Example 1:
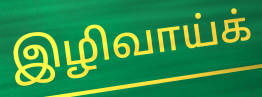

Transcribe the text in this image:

இழிவாய்க்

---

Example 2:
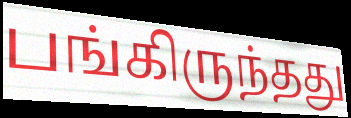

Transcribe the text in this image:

பங்கிருந்தது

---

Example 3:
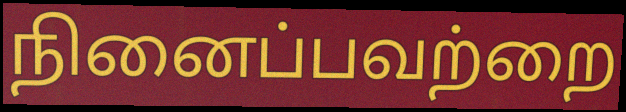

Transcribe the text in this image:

நினைப்பவற்றை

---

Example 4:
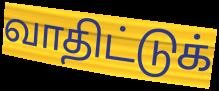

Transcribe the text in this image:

வாதிட்டுக்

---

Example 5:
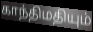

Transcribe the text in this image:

காந்திமதியும்